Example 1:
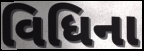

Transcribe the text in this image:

વિધિના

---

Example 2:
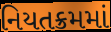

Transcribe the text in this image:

નિયતક્રમમાં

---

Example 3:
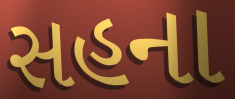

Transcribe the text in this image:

સહના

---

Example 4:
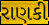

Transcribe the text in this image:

રાણકી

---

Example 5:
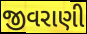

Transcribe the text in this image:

જીવરાણી